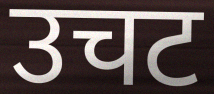
उचट